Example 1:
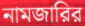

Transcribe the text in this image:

নামজারির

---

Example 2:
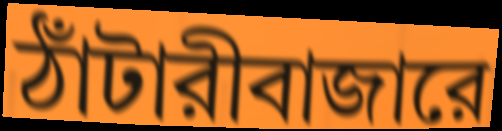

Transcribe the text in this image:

ঠাঁটারীবাজারে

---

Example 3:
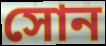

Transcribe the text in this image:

সোন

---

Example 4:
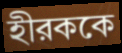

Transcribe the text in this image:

হীরককে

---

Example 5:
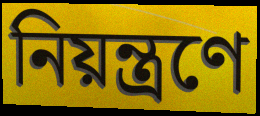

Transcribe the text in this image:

নিয়ন্ত্রণে